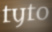
tyto